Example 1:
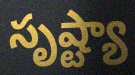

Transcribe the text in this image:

సృష్ట్యా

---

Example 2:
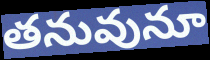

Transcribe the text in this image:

తనువునూ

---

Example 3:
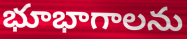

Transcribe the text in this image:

భూభాగాలను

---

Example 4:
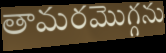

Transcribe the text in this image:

తామరమొగ్గను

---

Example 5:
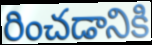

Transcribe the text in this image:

రించడానికి